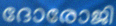
ദോരോജി